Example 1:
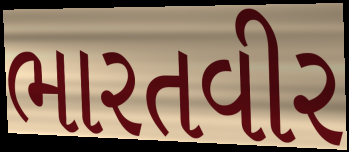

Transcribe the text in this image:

ભારતવીર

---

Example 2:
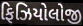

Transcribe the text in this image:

ફિઝિયોલોજી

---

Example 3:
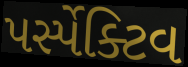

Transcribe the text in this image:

પર્સ્પેક્ટિવ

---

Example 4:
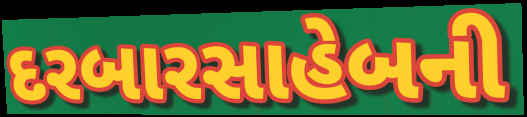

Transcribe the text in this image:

દરબારસાહેબની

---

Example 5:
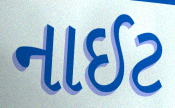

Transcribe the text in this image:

નાઈટ